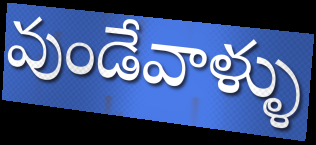
వుండేవాళ్ళు